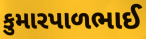
કુમારપાળભાઈ